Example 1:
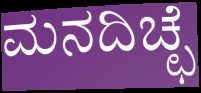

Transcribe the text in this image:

ಮನದಿಚ್ಛೆ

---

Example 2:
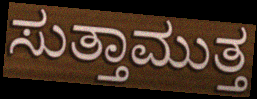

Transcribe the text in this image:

ಸುತ್ತಾಮುತ್ತ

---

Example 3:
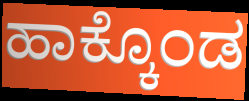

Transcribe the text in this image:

ಹಾಕ್ಕೊಂಡ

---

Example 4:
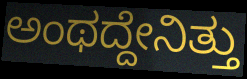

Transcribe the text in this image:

ಅಂಥದ್ದೇನಿತ್ತು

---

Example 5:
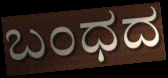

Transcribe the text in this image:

ಬಂಧದ